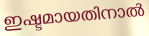
ഇഷ്ടമായതിനാൽ